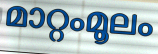
മാറ്റംമൂലം